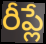
రీప్లే